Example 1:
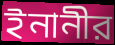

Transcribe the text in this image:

ইনানীর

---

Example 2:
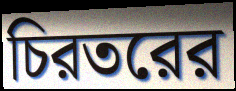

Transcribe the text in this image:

চিরতরের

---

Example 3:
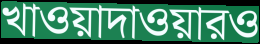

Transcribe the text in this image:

খাওয়াদাওয়ারও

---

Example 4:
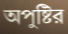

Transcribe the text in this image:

অপুষ্টির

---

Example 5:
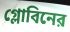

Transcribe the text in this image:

গ্লোবিনের